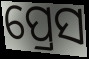
ପ୍ରେସ